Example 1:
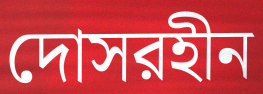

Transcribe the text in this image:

দোসরহীন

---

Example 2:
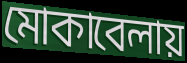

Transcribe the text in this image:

মোকাবেলায়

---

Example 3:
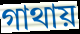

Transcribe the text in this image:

গাথায়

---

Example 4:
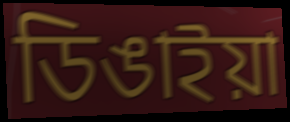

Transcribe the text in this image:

ডিঙাইয়া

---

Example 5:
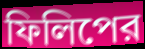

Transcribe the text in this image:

ফিলিপের